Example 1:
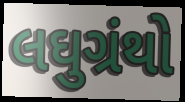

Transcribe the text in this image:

લઘુગ્રંથો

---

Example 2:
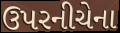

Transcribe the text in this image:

ઉપરનીચેના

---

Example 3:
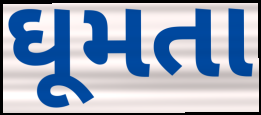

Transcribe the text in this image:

ઘૂમતા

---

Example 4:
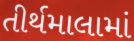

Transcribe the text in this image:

તીર્થમાલામાં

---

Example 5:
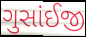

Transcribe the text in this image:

ગુસાંઈજી